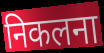
निकलना